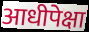
आधीपेक्षा